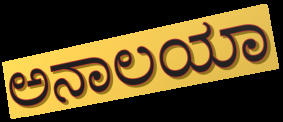
ಅನಾಲಯಾ